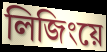
লিজিংয়ে